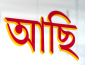
আছি